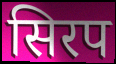
सिरप